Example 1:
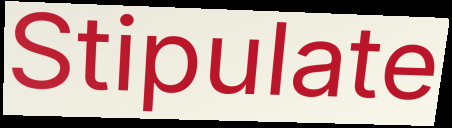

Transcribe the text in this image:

Stipulate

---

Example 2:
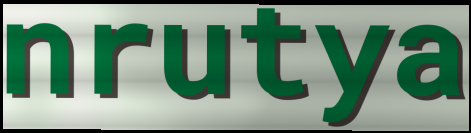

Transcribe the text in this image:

nrutya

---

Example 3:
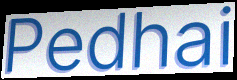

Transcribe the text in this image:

Pedhai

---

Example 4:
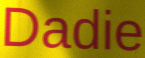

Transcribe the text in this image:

Dadie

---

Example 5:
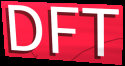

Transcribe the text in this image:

DFT